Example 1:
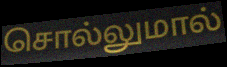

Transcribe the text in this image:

சொல்லுமால்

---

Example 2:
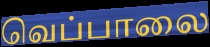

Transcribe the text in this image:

வெப்பாலை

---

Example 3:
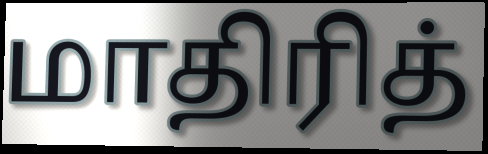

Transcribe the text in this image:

மாதிரித்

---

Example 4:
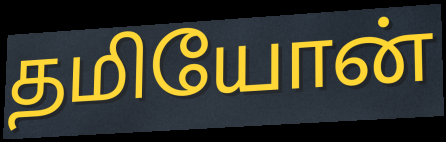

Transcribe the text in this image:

தமியோன்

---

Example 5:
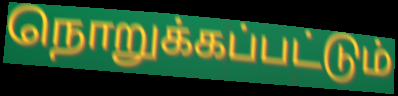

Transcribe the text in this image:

நொறுக்கப்பட்டும்